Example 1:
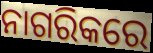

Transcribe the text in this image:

ନାଗରିକରେ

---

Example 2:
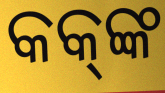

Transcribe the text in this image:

କକ୍‌ଙ୍କ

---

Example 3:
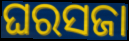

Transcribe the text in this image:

ଘରସଜା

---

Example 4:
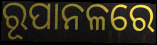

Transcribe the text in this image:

ରୂପାନଳରେ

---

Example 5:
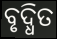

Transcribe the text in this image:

ବୃଦ୍ଧିତ